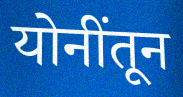
योनींतून